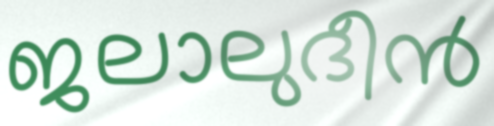
ജലാലുദീൻ